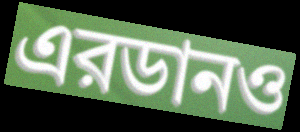
এরডানও